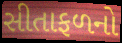
સીતાફળનો